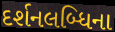
દર્શનલબ્ધિના